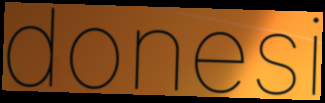
donesi